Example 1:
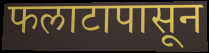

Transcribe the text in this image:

फलाटापासून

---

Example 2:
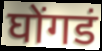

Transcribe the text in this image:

घोंगडं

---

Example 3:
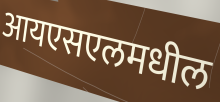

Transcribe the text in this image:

आयएसएलमधील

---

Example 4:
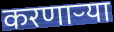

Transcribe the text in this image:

करणाऱ्या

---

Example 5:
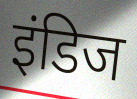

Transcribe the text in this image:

इंडिज